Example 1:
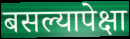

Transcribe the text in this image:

बसल्यापेक्षा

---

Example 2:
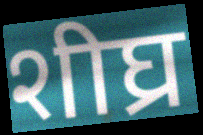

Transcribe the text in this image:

शीघ्र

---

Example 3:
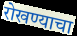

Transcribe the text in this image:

रोखण्याचा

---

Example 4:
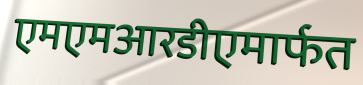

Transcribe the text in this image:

एमएमआरडीएमार्फत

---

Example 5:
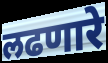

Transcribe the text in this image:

लढणारे